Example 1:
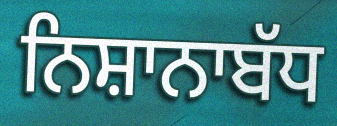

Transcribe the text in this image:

ਨਿਸ਼ਾਨਾਬੱਧ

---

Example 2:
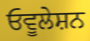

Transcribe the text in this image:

ਓਵੂਲੇਸ਼ਨ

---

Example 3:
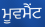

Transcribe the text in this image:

ਮੂਵਮੈਂਟ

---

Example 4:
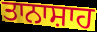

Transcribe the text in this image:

ਤਾਨਾਸ਼ਾਹ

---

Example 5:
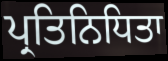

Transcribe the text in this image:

ਪ੍ਰਤਿਨਿਧਿਤਾ